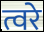
त्वरे